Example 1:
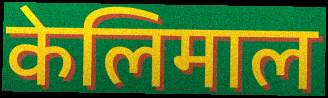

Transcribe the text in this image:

केलिमाल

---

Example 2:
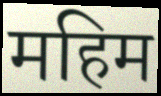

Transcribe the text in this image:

महिम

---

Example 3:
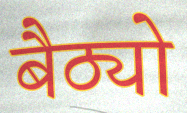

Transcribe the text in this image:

बैठ्यो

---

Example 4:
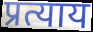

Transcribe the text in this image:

प्रत्याय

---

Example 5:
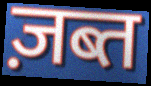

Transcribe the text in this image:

ज़ब्त